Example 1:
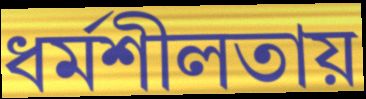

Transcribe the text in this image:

ধর্মশীলতায়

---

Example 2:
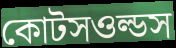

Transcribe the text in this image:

কোটসওল্ডস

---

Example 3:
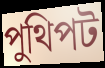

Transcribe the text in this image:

পুথিপট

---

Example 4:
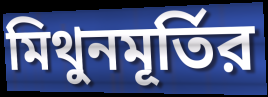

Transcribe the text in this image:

মিথুনমূর্তির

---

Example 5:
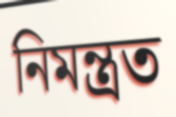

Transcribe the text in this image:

নিমন্ত্রত